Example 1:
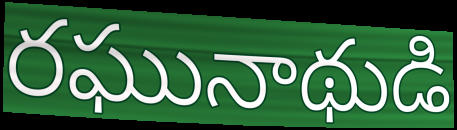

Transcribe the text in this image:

రఘునాథుడి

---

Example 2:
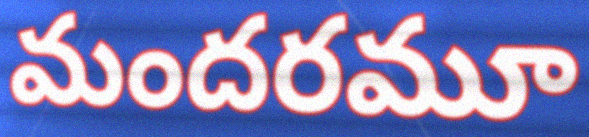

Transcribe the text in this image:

మందరమూ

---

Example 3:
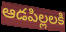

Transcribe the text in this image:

ఆడపిల్లలకి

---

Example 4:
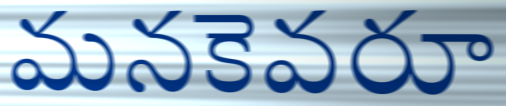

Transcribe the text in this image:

మనకెవరూ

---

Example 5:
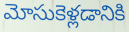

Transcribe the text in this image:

మోసుకెళ్లడానికి